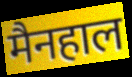
मैनहाल